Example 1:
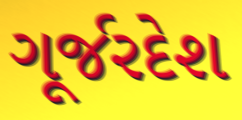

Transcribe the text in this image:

ગૂર્જરદેશ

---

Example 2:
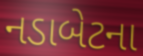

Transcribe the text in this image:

નડાબેટના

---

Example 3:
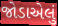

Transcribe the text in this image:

જોડાએલું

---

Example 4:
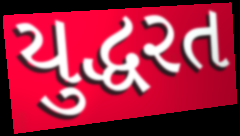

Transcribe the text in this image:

યુદ્ધરત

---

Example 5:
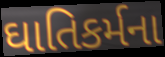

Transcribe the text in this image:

ઘાતિકર્મના